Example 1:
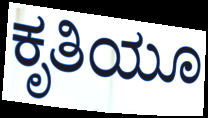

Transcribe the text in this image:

ಕೃತಿಯೂ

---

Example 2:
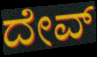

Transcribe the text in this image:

ದೇವ್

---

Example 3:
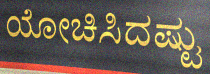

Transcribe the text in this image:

ಯೋಚಿಸಿದಷ್ಟು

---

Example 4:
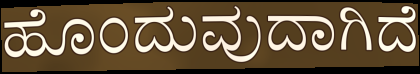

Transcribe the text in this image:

ಹೊಂದುವುದಾಗಿದೆ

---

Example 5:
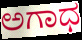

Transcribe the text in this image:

ಅಗಾಧ